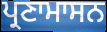
ਪ੍ਰਣਾਮਾਸਨ